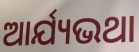
ଆର୍ଯ୍ୟଭଥା